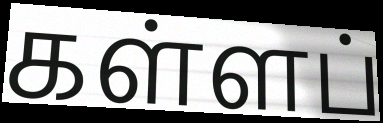
கள்ளப்